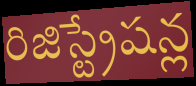
రిజిస్ట్రేషన్ల